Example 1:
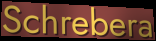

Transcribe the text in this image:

Schrebera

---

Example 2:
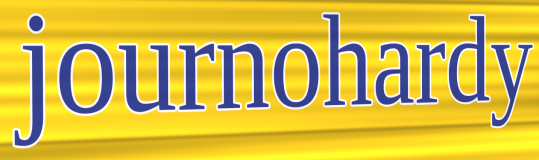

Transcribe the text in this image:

journohardy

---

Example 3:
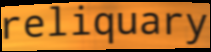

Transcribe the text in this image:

reliquary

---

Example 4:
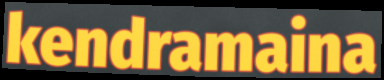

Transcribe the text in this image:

kendramaina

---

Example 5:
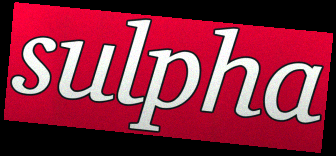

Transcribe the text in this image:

sulpha